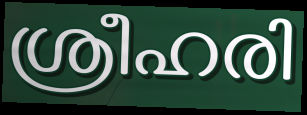
ശ്രീഹരി